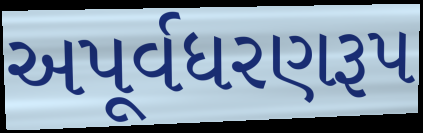
અપૂર્વધરણરૂપ